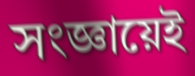
সংজ্ঞায়েই